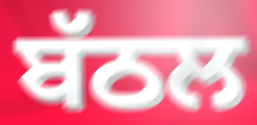
ਬੱਠਲ